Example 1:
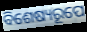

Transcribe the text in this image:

ବିଶେଷ୍ୟରୂପେ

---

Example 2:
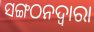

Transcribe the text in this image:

ସଙ୍ଗଠନଦ୍ୱାରା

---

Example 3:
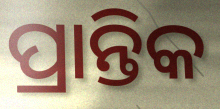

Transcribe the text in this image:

ପ୍ରାନ୍ତିକ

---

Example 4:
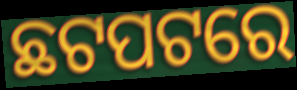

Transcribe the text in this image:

ଛଟପଟରେ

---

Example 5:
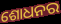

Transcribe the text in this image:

ଶୋଧନର